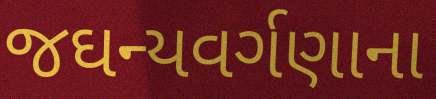
જઘન્યવર્ગણાના